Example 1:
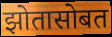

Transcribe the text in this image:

झोतासोबत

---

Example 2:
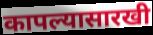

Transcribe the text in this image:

कापल्यासारखी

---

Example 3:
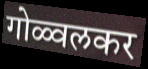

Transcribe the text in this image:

गोळ्वलकर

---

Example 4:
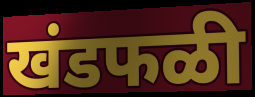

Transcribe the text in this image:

खंडफळी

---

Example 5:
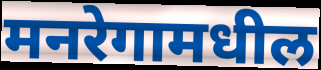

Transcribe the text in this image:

मनरेगामधील